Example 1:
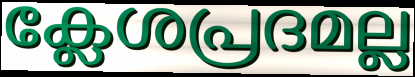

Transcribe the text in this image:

ക്ലേശപ്രദമല്ല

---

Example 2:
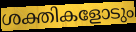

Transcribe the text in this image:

ശക്തികളോടും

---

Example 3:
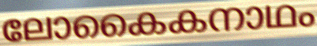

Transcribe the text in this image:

ലോകൈകനാഥം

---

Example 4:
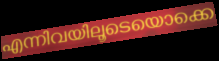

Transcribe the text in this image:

എന്നിവയിലൂടെയൊക്കെ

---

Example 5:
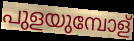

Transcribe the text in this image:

പുളയുമ്പോള്